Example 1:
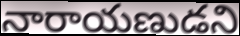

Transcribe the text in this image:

నారాయణుడని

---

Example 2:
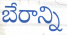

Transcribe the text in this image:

బేరాన్ని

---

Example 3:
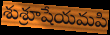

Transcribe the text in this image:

శుశ్రూషేయమపి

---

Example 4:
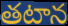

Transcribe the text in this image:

తటాన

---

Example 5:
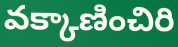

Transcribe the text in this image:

వక్కాణించిరి